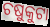
ଚଷୁକୁଟା